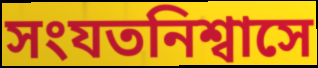
সংযতনিশ্বাসে